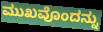
ಮುಖವೊಂದನ್ನು